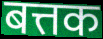
बत्तक